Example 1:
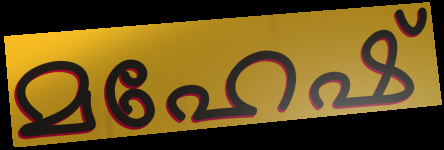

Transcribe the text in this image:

മഹേഷ്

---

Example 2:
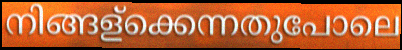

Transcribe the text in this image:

നിങ്ങള്ക്കെന്നതുപോലെ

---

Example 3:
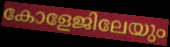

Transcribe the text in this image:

കോളേജിലേയും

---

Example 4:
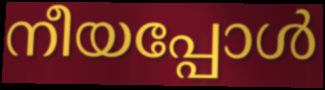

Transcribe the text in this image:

നീയപ്പോൾ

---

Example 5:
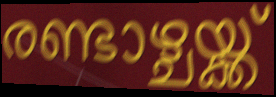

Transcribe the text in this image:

രണ്ടാഴ്ചയ്ക്ക്